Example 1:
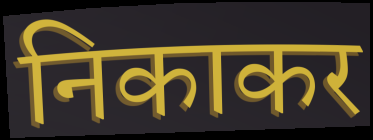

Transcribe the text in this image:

निकाकर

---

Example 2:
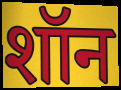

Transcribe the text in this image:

शॉन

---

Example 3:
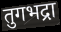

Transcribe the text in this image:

तुगभद्रा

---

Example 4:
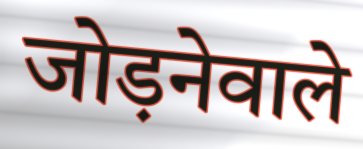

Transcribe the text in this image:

जोड़नेवाले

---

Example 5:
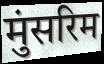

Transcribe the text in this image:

मुंसरिम